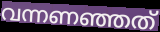
വന്നണഞ്ഞത്